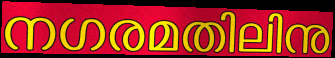
നഗരമതിലിനു